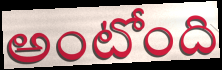
అంటోంది